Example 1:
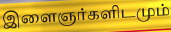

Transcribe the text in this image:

இளைஞர்களிடமும்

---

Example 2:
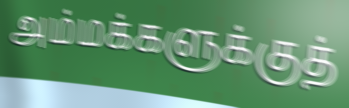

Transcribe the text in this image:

அம்மக்களுக்குத்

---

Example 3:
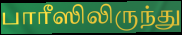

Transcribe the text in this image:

பாரீஸிலிருந்து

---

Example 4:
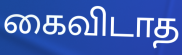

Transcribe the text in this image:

கைவிடாத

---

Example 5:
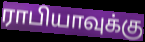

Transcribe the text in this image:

ராபியாவுக்கு